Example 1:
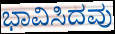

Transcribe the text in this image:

ಭಾವಿಸಿದವು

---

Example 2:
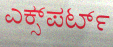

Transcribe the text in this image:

ಎಕ್ಸ್‌ಪರ್ಟ್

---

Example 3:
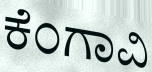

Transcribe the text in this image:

ಕೆಂಗಾವಿ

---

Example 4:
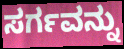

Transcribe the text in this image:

ಸರ್ಗವನ್ನು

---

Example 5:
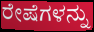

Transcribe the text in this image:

ರೇಷೆಗಳನ್ನು